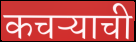
कचऱ्याची